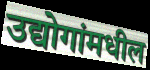
उद्योगांमधील